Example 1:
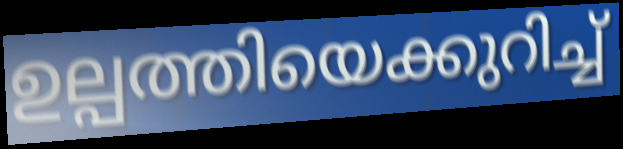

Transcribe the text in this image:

ഉല്പത്തിയെക്കുറിച്ച്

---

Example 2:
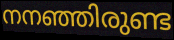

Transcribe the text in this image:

നനഞ്ഞിരുണ്ട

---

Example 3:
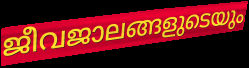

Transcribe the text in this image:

ജീവജാലങ്ങളുടെയും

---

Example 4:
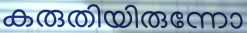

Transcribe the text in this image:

കരുതിയിരുന്നോ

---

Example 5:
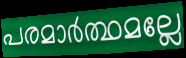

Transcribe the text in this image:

പരമാർത്ഥമല്ലേ